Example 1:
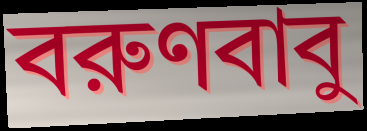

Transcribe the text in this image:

বরুণবাবু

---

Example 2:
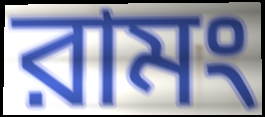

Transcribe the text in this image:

রামং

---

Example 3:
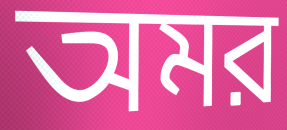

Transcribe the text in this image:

অমর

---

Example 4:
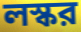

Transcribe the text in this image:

লস্কর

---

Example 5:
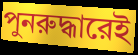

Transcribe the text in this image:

পুনরুদ্ধারেই